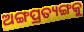
ଅଙ୍ଗପ୍ରତ୍ୟଙ୍ଗକୁ